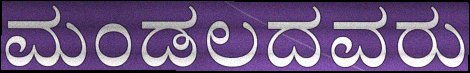
ಮಂಡಲದವರು